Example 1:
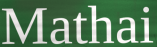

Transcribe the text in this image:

Mathai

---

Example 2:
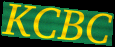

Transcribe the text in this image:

KCBC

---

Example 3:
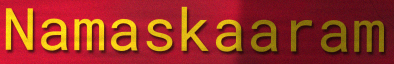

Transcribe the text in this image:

Namaskaaram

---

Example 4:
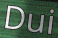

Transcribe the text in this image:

Dui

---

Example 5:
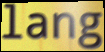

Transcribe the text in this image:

lang